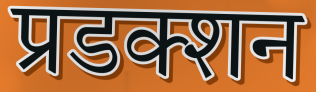
प्रडक्शन